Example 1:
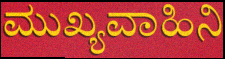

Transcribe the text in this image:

ಮುಖ್ಯವಾಹಿನಿ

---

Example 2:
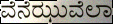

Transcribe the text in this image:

ವೆನೆಝುವೆಲಾ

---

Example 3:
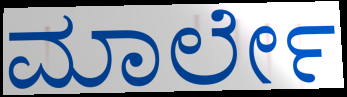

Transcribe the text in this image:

ಮಾರ್ಲೇ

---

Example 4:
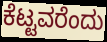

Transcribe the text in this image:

ಕೆಟ್ಟವರೆಂದು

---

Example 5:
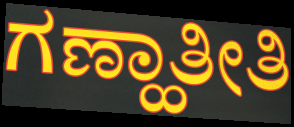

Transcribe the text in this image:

ಗಣ್ಹಾತೀತಿ